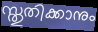
സ്തുതിക്കാനും